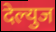
देल्युज